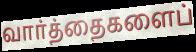
வார்த்தைகளைப்